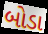
બોડા